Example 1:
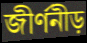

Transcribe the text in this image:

জীর্ণনীড়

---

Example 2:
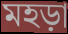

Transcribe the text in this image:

মহড়া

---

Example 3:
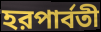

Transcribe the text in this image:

হরপার্বতী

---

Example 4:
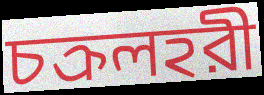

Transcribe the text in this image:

চক্রলহরী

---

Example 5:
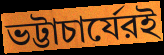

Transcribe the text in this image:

ভট্টাচার্যেরই